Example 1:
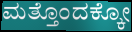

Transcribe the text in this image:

ಮತ್ತೊಂದಕ್ಕೋ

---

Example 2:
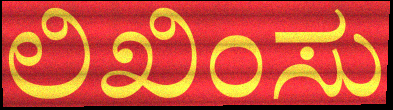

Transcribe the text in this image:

ಲಿಖಿಂಸು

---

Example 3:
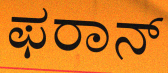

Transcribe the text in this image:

ಫರಾನ್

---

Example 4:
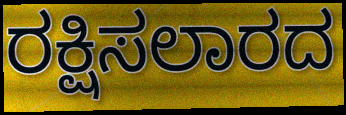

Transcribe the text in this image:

ರಕ್ಷಿಸಲಾರದ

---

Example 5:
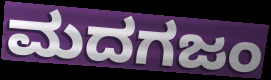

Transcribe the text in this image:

ಮದಗಜಂ